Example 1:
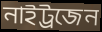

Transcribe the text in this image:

নাইট্রজেন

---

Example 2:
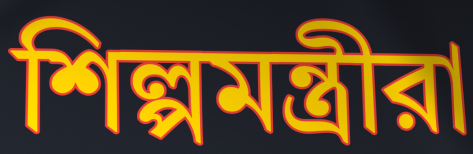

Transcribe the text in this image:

শিল্পমন্ত্রীরা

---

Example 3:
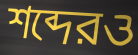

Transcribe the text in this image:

শব্দেরও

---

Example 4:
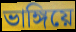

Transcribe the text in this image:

ভাঙ্গিয়ে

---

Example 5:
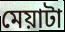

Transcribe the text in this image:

মেয়াটা